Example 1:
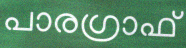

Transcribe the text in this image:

പാരഗ്രാഫ്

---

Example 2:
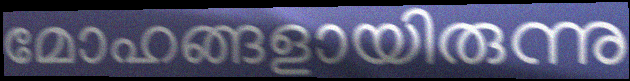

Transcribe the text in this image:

മോഹങ്ങളായിരുന്നു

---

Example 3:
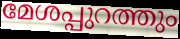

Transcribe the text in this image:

മേശപ്പുറത്തും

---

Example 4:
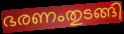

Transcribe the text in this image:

ഭരണംതുടങ്ങി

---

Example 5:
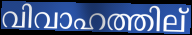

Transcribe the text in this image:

വിവാഹത്തില്